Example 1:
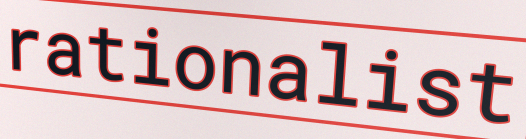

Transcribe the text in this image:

rationalist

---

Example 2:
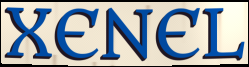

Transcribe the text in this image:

XENEL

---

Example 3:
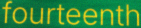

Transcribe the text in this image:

fourteenth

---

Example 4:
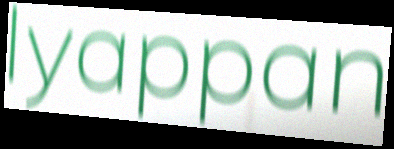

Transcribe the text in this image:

Iyappan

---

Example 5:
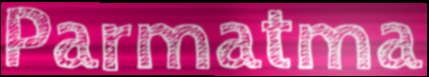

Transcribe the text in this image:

Parmatma